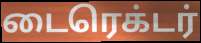
டைரெக்டர்